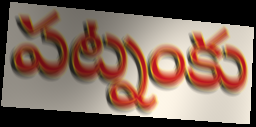
పట్నంకు